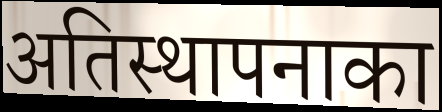
अतिस्थापनाका